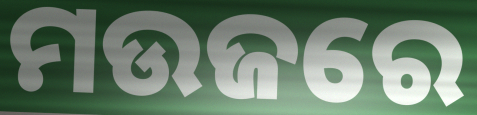
ମଉଜରେ